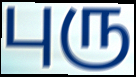
புரு